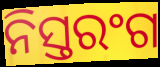
ନିସ୍ତରଂଗ